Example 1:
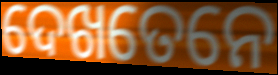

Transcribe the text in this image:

ଦେଖତେନେ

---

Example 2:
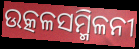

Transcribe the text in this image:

ଉତ୍କଳସମ୍ମିଳନୀ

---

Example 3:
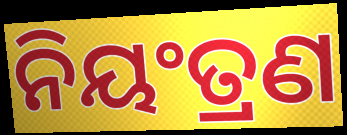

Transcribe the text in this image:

ନିୟଂତ୍ରଣ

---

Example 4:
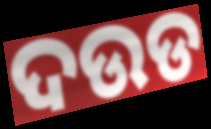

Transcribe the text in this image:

ଦଉଡ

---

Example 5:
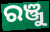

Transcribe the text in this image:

ରଞ୍ଜୁ